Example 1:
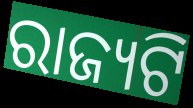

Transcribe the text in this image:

ରାଜ୍ୟଟି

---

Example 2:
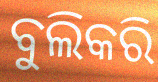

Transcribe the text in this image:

ବୁଲିକରି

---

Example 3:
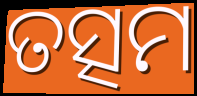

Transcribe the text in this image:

ତତ୍ସମ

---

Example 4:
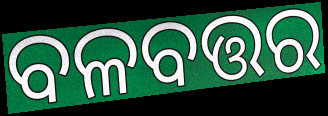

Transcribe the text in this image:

ବଳବତ୍ତର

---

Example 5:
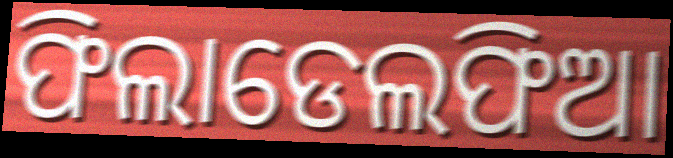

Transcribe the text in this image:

ଫିଲାଡେଲଫିଆ